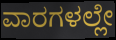
ವಾರಗಳಲ್ಲೇ